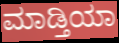
ಮಾಡ್ತಿಯಾ